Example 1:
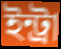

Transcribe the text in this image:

ইন্ট্রা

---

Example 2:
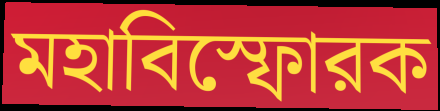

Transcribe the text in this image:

মহাবিস্ফোরক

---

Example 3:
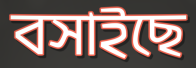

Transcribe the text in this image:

বসাইছে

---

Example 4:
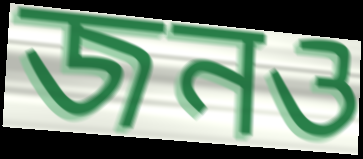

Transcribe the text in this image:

জনও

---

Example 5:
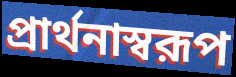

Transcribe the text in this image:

প্রার্থনাস্বরূপ